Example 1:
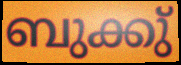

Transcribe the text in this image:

ബുക്കു്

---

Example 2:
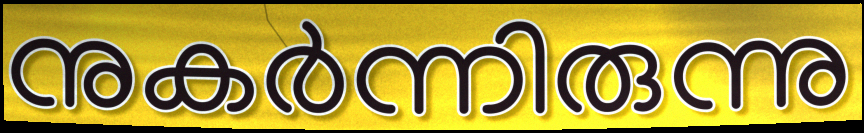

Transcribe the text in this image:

നുകർന്നിരുന്നു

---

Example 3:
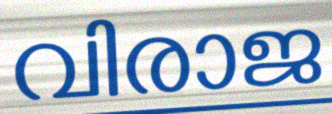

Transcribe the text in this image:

വിരാജ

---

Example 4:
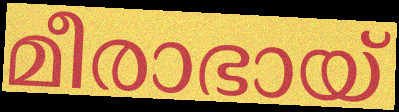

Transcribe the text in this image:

മീരാഭായ്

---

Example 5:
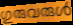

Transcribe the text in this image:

ഗുരുവരുൾ